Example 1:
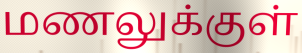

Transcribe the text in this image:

மணலுக்குள்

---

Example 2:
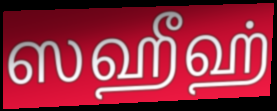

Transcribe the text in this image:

ஸஹீஹ்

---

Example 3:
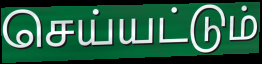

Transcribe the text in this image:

செய்யட்டும்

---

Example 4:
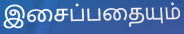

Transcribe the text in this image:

இசைப்பதையும்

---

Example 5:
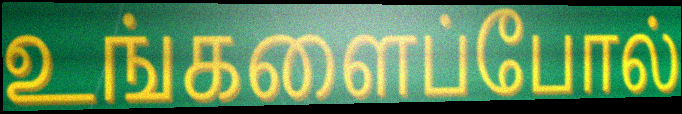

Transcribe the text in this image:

உங்களைப்போல்